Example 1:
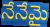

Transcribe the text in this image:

నేనేమై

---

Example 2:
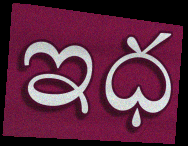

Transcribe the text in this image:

ఇధ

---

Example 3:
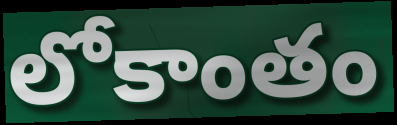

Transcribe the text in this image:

లోకాంతం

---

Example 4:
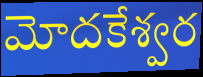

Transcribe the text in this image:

మోదకేశ్వర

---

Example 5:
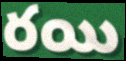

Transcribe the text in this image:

రయి